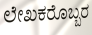
ಲೇಖಕರೊಬ್ಬರ